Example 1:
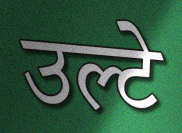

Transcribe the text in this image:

उल्टे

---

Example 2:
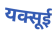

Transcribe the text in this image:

यक्सूई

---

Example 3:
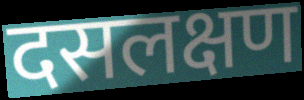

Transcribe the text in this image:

दसलक्षण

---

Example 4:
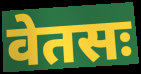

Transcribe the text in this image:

वेतसः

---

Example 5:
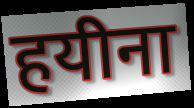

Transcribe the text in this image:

हयीना